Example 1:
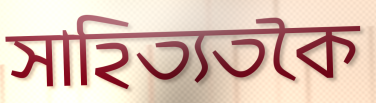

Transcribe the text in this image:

সাহিত্যতকৈ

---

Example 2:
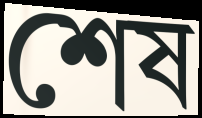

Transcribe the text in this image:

শেষ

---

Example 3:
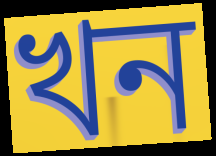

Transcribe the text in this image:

খন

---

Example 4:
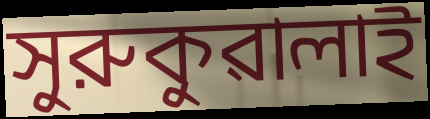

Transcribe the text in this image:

সুৰুকুৱালাই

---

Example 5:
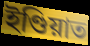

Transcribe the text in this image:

ইণ্ডিয়াত